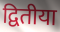
द्वितीया